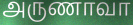
அருணாவா